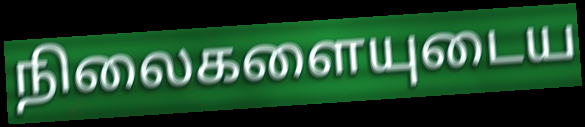
நிலைகளையுடைய